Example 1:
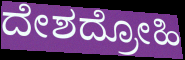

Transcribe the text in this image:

ದೇಶದ್ರೋಹಿ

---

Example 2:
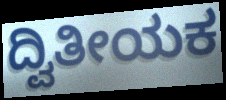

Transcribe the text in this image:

ದ್ವಿತೀಯಕ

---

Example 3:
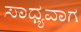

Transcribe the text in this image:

ಸಾಧ್ಯವಾಗ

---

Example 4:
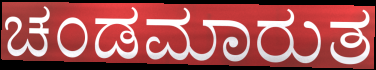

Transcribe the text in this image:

ಚಂಡಮಾರುತ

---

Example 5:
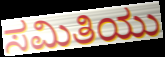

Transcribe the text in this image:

ಸಮಿತಿಯು